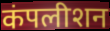
कंपलीशन